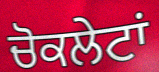
ਚੋਕਲੇਟਾਂ